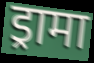
ड्रामा